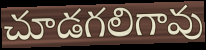
చూడగలిగావు